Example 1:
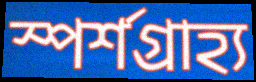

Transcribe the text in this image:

স্পর্শগ্রাহ্য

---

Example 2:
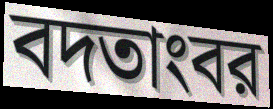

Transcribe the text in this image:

বদতাংবর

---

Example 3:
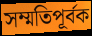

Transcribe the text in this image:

সম্মতিপূর্বক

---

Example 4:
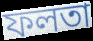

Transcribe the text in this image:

ফলতা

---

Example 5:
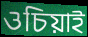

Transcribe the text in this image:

ওচিয়াই